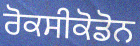
ਰੋਕਸੀਕੋਡੋਨ